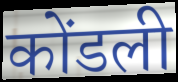
कोंडली